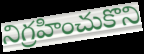
నిగ్రహించుకొని